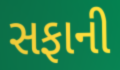
સફાની